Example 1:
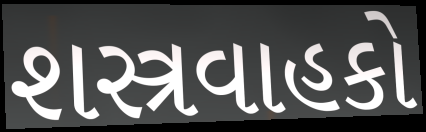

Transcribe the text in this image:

શસ્ત્રવાહકો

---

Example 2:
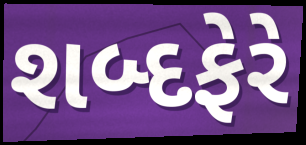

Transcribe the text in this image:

શબ્દફેરે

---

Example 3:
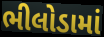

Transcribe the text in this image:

ભીલોડામાં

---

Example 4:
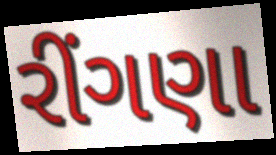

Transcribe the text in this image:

રીંગણા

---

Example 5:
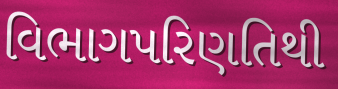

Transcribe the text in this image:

વિભાગપરિણતિથી